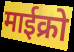
माईक्रो